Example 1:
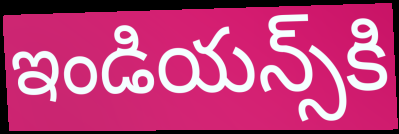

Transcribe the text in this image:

ఇండియన్స్‌కి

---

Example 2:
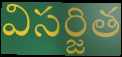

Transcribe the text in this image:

విసర్జిత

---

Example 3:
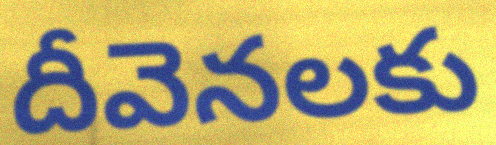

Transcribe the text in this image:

దీవెనలకు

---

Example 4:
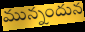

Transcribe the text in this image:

మున్నందున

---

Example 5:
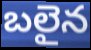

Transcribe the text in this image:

బలైన